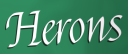
Herons